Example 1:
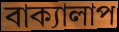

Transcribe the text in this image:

বাক্যালাপ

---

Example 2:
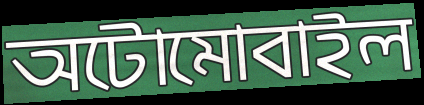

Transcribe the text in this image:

অটোমোবাইল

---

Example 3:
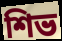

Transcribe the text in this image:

শিভ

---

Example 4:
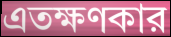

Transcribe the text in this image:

এতক্ষণকার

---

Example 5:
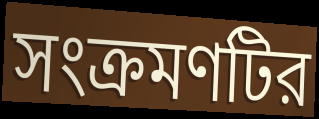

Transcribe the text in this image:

সংক্রমণটির